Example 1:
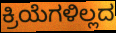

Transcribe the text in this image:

ಕ್ರಿಯೆಗಳಿಲ್ಲದ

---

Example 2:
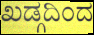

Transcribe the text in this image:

ಖಡ್ಗದಿಂದ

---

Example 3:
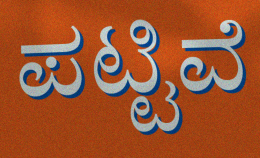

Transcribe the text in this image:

ಪಟ್ಟಿವೆ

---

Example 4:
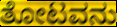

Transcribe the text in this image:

ತೋಟವನು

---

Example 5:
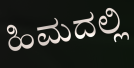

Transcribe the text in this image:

ಹಿಮದಲ್ಲಿ